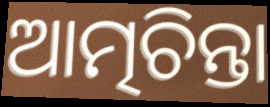
ଆତ୍ମଚିନ୍ତା